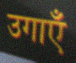
उगाएँ